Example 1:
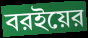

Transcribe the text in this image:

বরইয়ের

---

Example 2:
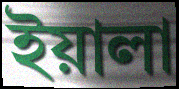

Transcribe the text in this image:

ইয়ালা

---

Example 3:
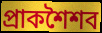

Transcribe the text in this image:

প্রাকশৈশব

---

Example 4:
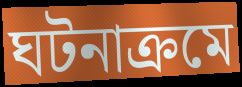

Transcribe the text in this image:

ঘটনাক্রমে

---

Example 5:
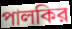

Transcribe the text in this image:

পালকির